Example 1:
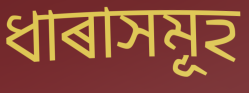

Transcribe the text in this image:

ধাৰাসমূহ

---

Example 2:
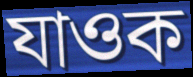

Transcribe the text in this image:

যাওক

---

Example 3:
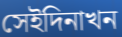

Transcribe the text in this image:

সেইদিনাখন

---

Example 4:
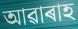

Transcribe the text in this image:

আৱাৰাহ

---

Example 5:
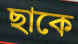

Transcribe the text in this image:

ছাকে